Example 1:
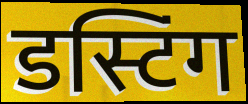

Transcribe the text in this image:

डस्टिंग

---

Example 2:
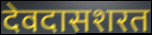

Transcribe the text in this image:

देवदासशरत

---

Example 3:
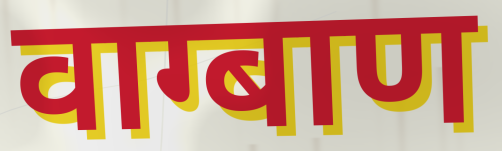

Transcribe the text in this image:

वाग्बाण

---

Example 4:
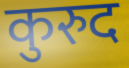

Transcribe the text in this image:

कुरुद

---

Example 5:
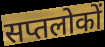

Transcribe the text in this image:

सप्तलोकों